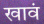
खावं